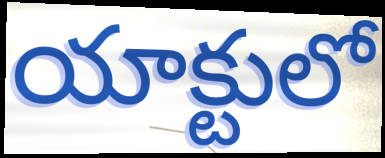
యాక్టులో